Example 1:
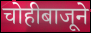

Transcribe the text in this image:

चोहीबाजूने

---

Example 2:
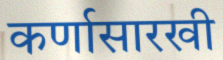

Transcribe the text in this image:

कर्णासारखी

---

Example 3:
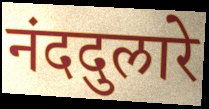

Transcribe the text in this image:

नंददुलारे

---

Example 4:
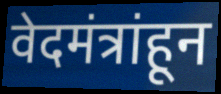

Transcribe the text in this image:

वेदमंत्रांहून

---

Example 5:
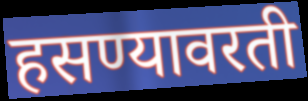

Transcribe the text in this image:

हसण्यावरती